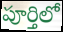
పూర్తిలో